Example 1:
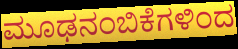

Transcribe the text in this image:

ಮೂಢನಂಬಿಕೆಗಳಿಂದ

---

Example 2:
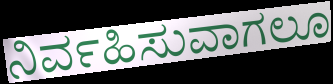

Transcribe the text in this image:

ನಿರ್ವಹಿಸುವಾಗಲೂ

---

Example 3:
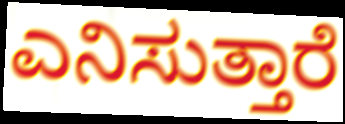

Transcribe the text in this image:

ಎನಿಸುತ್ತಾರೆ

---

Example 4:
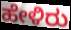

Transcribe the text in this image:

ಹೇಳಿರು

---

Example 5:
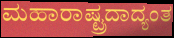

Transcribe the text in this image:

ಮಹಾರಾಷ್ಟ್ರದಾದ್ಯಂತ